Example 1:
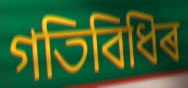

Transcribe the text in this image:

গতিবিধিৰ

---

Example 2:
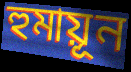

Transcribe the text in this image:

হুমায়ূন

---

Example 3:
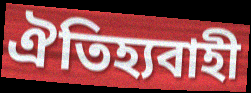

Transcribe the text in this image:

ঐতিহ্যবাহী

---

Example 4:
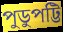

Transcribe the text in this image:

পুডুপট্টি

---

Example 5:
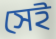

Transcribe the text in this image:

সেই